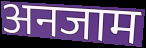
अनजाम